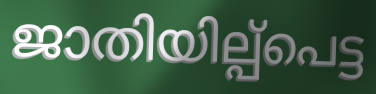
ജാതിയില്പ്പെട്ട